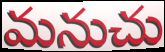
మనుచు